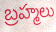
బ్రహ్మలు